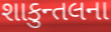
શાકુન્તલના